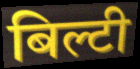
बिल्टी